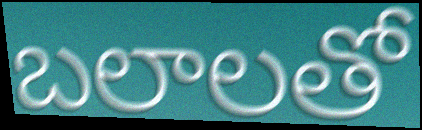
బలాలతో